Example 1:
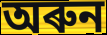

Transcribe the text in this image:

অৰুন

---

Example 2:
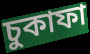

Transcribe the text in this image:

চুকাফা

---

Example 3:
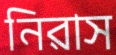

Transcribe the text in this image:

নিৱাস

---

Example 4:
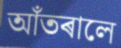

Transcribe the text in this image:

আঁতৰালে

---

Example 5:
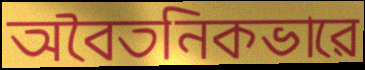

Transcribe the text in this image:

অবৈতনিকভাৱে